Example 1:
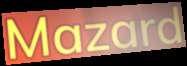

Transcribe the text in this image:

Mazard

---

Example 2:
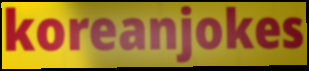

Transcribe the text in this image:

koreanjokes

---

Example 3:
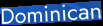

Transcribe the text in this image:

Dominican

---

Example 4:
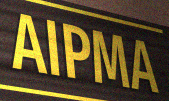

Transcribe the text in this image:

AIPMA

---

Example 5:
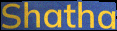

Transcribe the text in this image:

Shatha